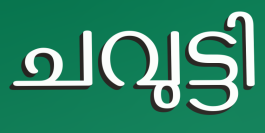
ചവുട്ടി